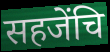
सहजेंचि